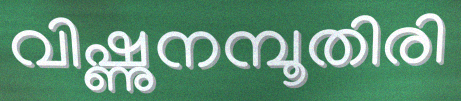
വിഷ്ണുനമ്പൂതിരി